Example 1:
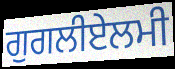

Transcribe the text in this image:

ਗੁਗਲੀਏਲਮੀ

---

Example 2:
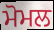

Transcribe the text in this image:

ਮੋਮਲ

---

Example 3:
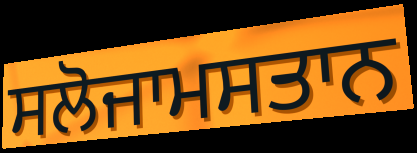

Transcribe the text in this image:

ਸਲੋਜਾਮਸਤਾਨ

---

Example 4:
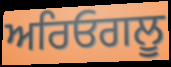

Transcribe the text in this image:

ਅਰਿਓਗਲੂ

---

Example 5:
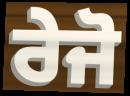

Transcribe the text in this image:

ਰੇਜੋ